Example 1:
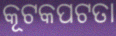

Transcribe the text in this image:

କୂଟକପଟତା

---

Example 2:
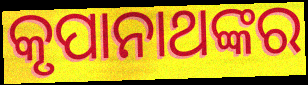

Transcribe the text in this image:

କୃପାନାଥଙ୍କର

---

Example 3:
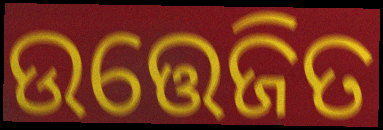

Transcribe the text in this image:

ଉତ୍ତେଜିତ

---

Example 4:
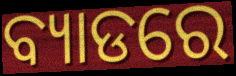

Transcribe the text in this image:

ବ୍ୟାଡରେ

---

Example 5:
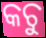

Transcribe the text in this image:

କଚୁ